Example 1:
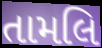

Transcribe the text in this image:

તામલિ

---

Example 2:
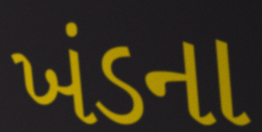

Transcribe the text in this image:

ખંડના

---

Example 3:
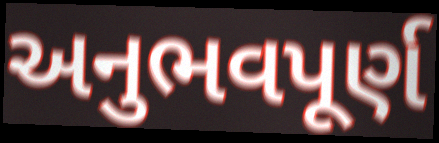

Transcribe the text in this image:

અનુભવપૂર્ણ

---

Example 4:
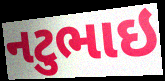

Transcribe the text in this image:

નટુભાઇ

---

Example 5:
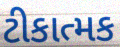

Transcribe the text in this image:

ટીકાત્મક